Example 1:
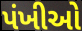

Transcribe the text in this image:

પંખીઓ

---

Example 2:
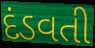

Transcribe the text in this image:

દંડવતી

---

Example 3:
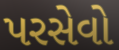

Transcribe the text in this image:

પરસેવો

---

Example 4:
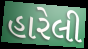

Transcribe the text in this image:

હારેલી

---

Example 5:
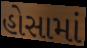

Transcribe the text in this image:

હોસામાં